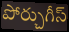
పోర్చుగీస్